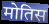
मोतिस